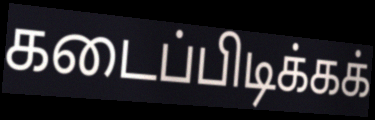
கடைப்பிடிக்கக்